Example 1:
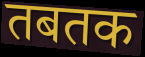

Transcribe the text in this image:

तबतक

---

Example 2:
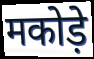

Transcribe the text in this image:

मकोड़े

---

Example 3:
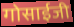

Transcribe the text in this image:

गोसाईजी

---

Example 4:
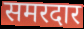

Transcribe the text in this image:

समरदार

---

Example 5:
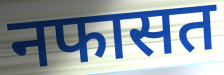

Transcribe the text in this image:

नफासत